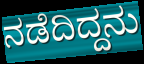
ನಡೆದಿದ್ದನು